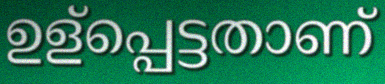
ഉള്പ്പെട്ടതാണ്